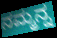
ನಮ್ಮನ್ನ